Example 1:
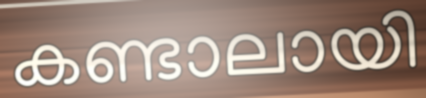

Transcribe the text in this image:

കണ്ടാലായി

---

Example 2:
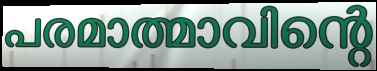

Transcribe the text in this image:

പരമാത്മാവിന്റെ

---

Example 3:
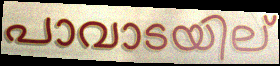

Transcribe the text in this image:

പാവാടയില്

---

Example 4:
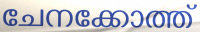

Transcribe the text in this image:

ചേനക്കോത്ത്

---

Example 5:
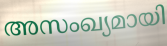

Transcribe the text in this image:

അസംഖ്യമായി